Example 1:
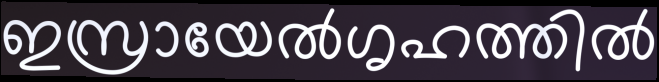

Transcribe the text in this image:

ഇസ്രായേൽഗൃഹത്തിൽ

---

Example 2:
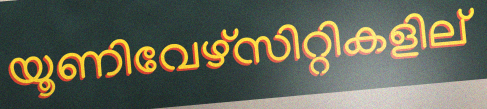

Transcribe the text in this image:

യൂണിവേഴ്സിറ്റികളില്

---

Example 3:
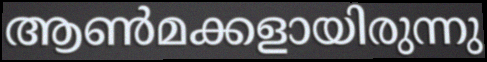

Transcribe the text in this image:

ആൺമക്കളായിരുന്നു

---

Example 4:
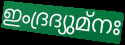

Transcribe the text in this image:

ഇംദ്രദ്യുമ്നഃ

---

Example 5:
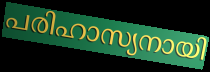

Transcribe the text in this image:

പരിഹാസ്യനായി